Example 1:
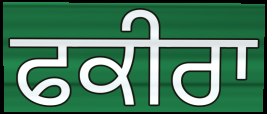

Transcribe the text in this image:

ਫਕੀਰਾ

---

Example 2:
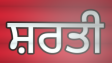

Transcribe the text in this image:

ਸ਼ਰਤੀ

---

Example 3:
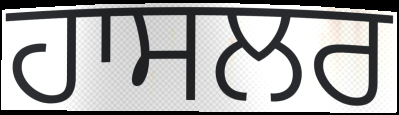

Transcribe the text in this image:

ਹਾਸਲਰ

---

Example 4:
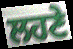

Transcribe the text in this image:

ਲਹਣੇ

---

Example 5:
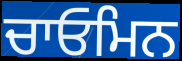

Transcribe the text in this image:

ਚਾਓਮਿਨ